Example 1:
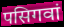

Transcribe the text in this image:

पसिगवां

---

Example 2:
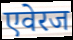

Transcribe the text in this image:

एवेरज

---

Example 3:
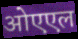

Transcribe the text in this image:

ओएएल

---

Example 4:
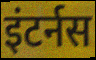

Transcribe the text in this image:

इंटर्नस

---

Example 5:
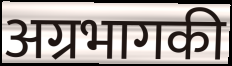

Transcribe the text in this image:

अग्रभागकी